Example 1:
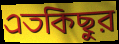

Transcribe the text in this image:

এতকিছুর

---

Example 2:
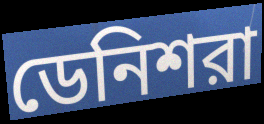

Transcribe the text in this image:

ডেনিশরা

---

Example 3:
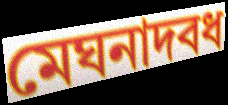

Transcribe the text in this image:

মেঘনাদবধ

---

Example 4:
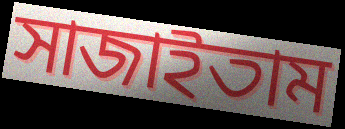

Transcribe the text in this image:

সাজাইতাম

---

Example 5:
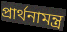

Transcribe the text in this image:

প্রার্থনামন্ত্র